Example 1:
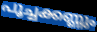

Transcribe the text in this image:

പൂച്ചക്കണ്ണും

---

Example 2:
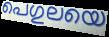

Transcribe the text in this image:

പെഗുലയെ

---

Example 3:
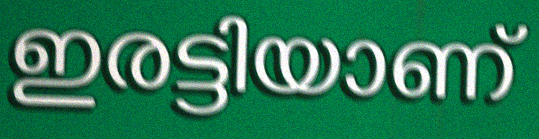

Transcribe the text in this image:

ഇരട്ടിയാണ്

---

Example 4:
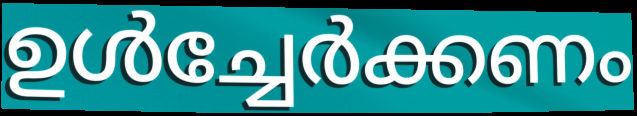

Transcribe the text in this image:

ഉൾച്ചേർക്കണം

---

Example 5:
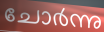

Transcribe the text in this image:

ചോർന്നു